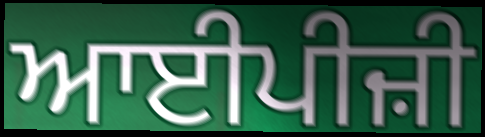
ਆਈਪੀਜ਼ੀ